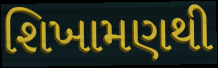
શિખામણથી